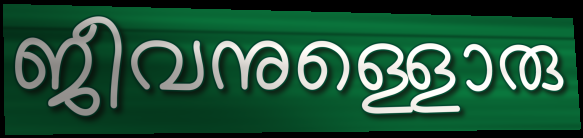
ജീവനുള്ളൊരു